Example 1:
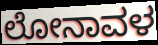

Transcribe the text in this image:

ಲೋನಾವಳ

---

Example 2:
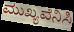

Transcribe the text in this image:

ಮುಖ್ಯವೆನಿಸಿ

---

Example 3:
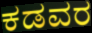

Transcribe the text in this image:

ಕಡವರ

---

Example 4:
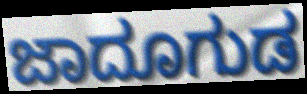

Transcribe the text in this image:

ಜಾದೂಗುಡ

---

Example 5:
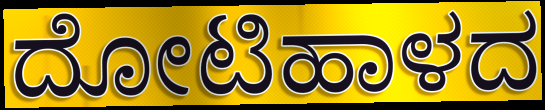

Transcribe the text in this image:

ದೋಟಿಹಾಳದ